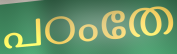
പഠംതേ